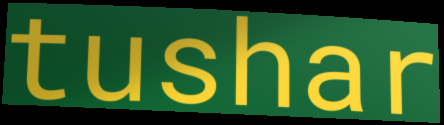
tushar